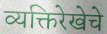
व्यक्तिरेखेचे